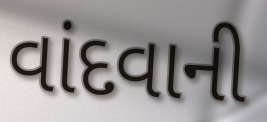
વાંદવાની